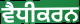
ਵੈਧੀਕਰਨ